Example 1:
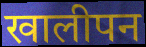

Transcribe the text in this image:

खालीपन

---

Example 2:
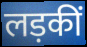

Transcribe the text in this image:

लड़कीं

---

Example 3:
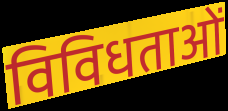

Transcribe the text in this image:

विविधताओं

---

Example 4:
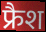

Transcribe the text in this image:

फ्रैश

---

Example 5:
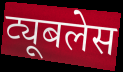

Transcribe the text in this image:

ट्यूबलेस